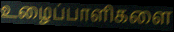
உழைப்பாளிகளை